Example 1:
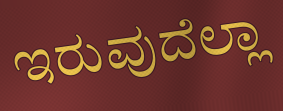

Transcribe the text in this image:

ಇರುವುದೆಲ್ಲಾ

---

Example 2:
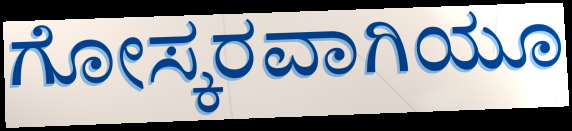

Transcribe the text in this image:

ಗೋಸ್ಕರವಾಗಿಯೂ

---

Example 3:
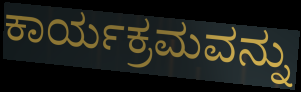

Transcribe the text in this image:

ಕಾರ್ಯಕ್ರಮವನ್ನು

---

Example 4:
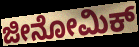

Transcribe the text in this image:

ಜೀನೋಮಿಕ್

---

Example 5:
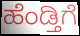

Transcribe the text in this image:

ಹೆಂಡ್ತಿಗೆ